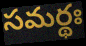
సమర్థః